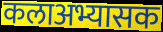
कलाअभ्यासक